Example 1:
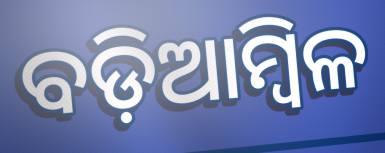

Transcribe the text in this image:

ବଡ଼ିଆମ୍ବିଳ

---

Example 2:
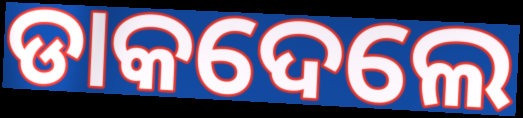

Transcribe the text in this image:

ଡାକଦେଲେ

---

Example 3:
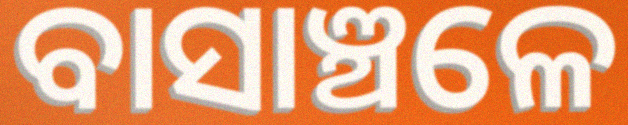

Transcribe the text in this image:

ବାସାଞ୍ଚଳେ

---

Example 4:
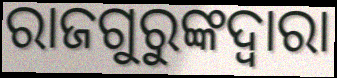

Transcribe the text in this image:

ରାଜଗୁରୁଙ୍କଦ୍ୱାରା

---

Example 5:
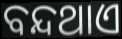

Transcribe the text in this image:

ବନ୍ଦଥାଏ